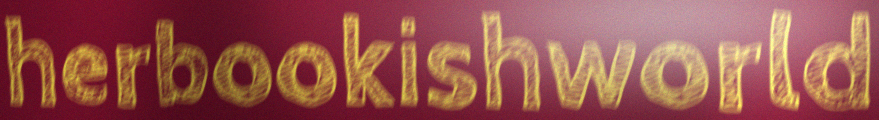
herbookishworld